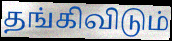
தங்கிவிடும்